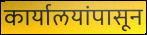
कार्यालयांपासून